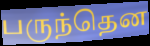
பருந்தென